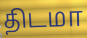
திடமா